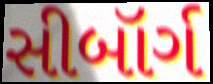
સીબૉર્ગ